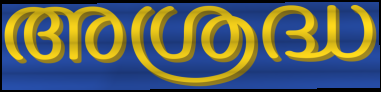
അശ്രദ്ധ